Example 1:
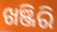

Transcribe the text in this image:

ଖଞ୍ଜିରି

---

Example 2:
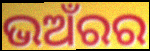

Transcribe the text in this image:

ଭଅଁରର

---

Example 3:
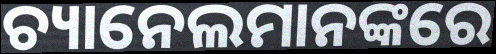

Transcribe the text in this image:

ଚ୍ୟାନେଲମାନଙ୍କରେ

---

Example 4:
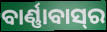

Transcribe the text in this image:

ବାର୍ଣ୍ଣାବାସ୍‌ର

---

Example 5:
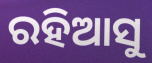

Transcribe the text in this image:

ରହିଆସୁ